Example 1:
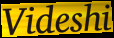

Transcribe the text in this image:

Videshi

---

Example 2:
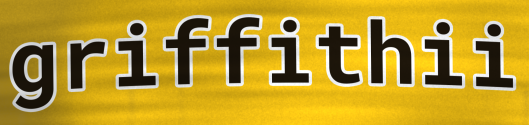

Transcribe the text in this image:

griffithii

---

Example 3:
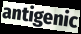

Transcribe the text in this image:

antigenic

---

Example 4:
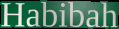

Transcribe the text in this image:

Habibah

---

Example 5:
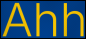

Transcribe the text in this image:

Ahh